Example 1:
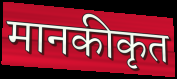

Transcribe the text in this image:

मानकीकृत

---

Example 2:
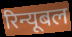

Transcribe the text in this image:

रिन्यूबल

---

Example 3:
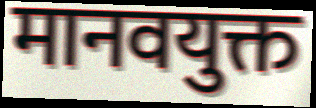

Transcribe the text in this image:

मानवयुक्त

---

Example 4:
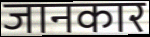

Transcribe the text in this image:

जानकार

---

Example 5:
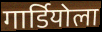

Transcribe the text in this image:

गार्डियोला